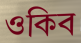
ওকিব